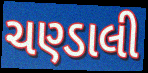
ચણ્ડાલી